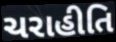
ચરાહીતિ